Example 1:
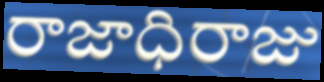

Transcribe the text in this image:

రాజాధిరాజు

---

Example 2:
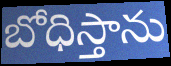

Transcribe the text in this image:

బోధిస్తాను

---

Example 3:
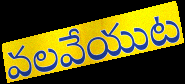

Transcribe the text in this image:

వలవేయుట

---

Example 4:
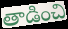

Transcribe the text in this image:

తాడించి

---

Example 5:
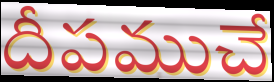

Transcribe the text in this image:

దీపముచే